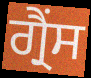
ਗ੍ਰੈਂਸ